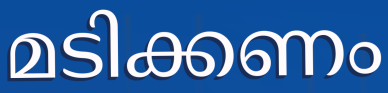
മടിക്കണം